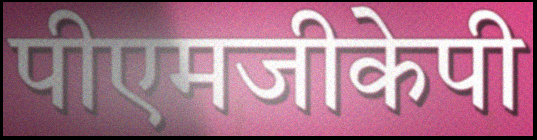
पीएमजीकेपी